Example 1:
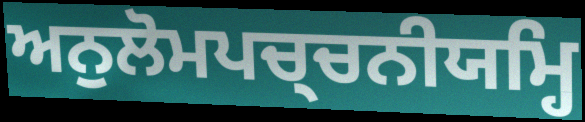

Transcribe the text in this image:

ਅਨੁਲੋਮਪਚ੍ਚਨੀਯਮ੍ਹਿ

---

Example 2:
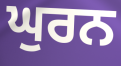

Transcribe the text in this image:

ਘੁਰਨ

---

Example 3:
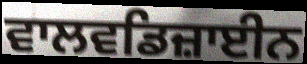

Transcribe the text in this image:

ਵਾਲਵਡਿਜ਼ਾਈਨ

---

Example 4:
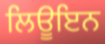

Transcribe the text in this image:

ਲਿਊਇਨ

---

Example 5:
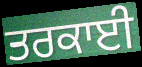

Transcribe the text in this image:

ਤਰਕਾਈ